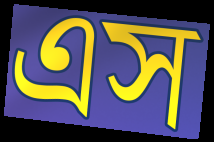
এস